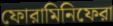
ফোরামিনিফেরা